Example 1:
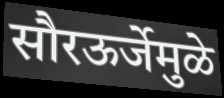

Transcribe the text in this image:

सौरऊर्जेमुळे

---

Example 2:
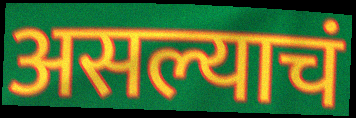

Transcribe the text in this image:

असल्याचं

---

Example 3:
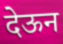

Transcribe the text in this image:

देऊन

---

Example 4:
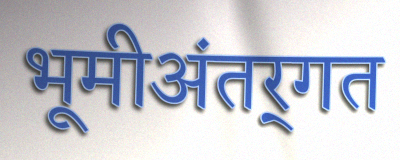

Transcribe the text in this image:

भूमीअंतर्गत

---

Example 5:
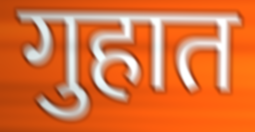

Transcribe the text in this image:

गुहात